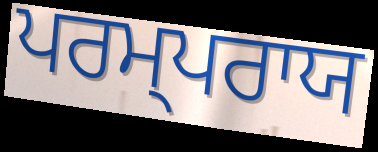
ਪਰਮ੍ਪਰਾਯ